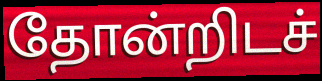
தோன்றிடச்